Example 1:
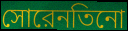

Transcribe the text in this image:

সোরেনতিনো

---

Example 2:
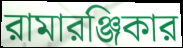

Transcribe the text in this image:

রামারঞ্জিকার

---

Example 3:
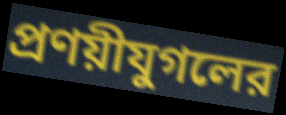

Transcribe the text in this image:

প্রণয়ীযুগলের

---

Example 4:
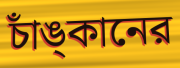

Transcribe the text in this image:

চাঁঙ্‌কানের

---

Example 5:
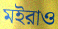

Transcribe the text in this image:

মইরাও